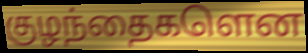
குழந்தைகளென